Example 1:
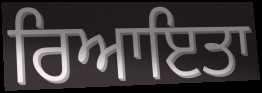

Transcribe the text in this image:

ਰਿਆਇਤਾ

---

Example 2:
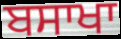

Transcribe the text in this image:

ਬਸਾਖਾ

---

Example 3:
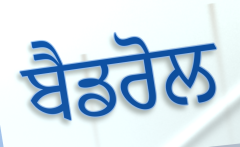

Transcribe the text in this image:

ਬੈਡਰੋਲ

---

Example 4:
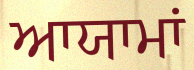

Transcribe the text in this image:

ਆਯਾਮਾਂ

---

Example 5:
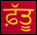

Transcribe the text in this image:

ਫ਼ੱਤੂ